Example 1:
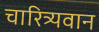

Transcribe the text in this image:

चारित्र्यवान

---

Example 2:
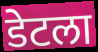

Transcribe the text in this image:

डेटला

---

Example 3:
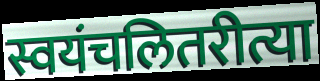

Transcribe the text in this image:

स्वयंचलितरीत्या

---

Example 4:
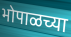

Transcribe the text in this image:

भोपाळच्या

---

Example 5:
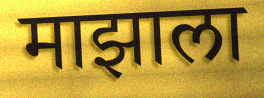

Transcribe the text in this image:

माझाला